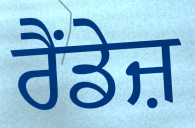
ਰੈਂਡੇਜ਼